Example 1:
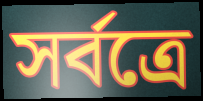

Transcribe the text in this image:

সৰ্বত্ৰে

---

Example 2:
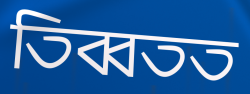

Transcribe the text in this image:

তিব্বতত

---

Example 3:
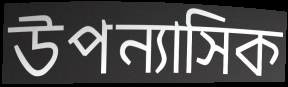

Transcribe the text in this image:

উপন্যাসিক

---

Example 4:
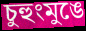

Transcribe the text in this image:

চুহুংমুঙে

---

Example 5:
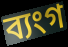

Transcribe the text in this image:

ব্যংগ